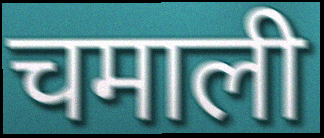
चमाली